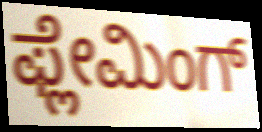
ಫ್ಲೇಮಿಂಗ್